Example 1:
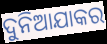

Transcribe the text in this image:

ଦୁନିଆଯାକର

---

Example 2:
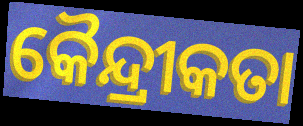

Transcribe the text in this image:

କୈନ୍ଦ୍ରୀକତା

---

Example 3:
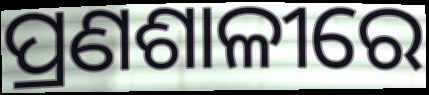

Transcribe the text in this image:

ପ୍ରଣଶାଳୀରେ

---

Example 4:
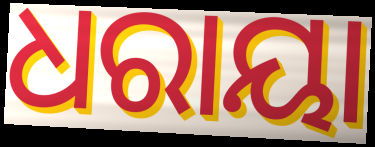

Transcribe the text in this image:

ଧରାୟା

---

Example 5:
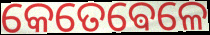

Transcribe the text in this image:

କେତେଵେଳେ